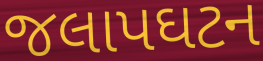
જલાપઘટન